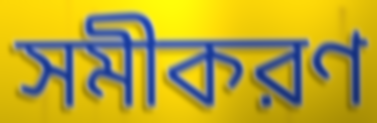
সমীকরণ